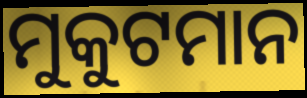
ମୁକୁଟମାନ